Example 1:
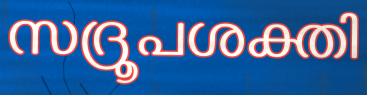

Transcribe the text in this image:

സദ്രൂപശക്തി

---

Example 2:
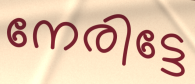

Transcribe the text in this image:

നേരിട്ടേ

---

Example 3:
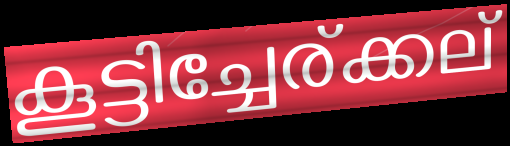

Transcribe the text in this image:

കൂട്ടിച്ചേര്ക്കല്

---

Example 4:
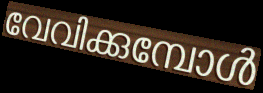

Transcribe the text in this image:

വേവിക്കുമ്പോൾ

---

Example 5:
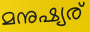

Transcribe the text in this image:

മനുഷ്യര്